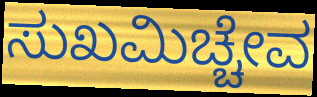
ಸುಖಮಿಚ್ಚೇವ